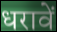
धरावें